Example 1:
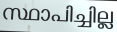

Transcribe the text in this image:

സ്ഥാപിച്ചില്ല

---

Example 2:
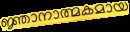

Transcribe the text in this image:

ജ്ഞാനാത്മകമായ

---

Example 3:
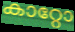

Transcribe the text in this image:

കാറ്റോ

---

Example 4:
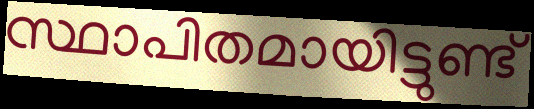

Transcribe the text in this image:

സ്ഥാപിതമായിട്ടുണ്ട്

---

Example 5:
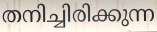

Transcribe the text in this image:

തനിച്ചിരിക്കുന്ന